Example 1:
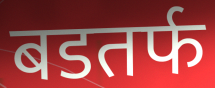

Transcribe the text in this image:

बडतर्फ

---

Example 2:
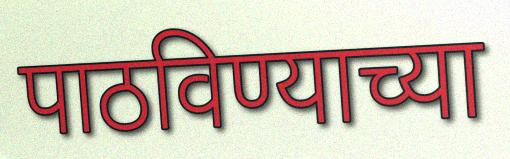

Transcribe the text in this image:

पाठविण्याच्या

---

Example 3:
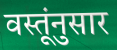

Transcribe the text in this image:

वस्तूंनुसार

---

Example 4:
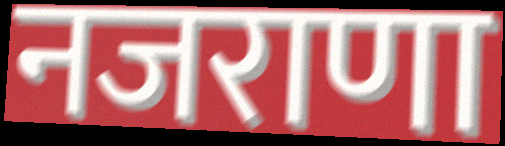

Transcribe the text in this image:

नजराणा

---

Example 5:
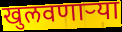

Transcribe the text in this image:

खुलवणाऱ्या